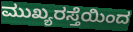
ಮುಖ್ಯರಸ್ತೆಯಿಂದ